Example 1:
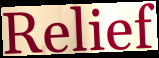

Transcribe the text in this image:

Relief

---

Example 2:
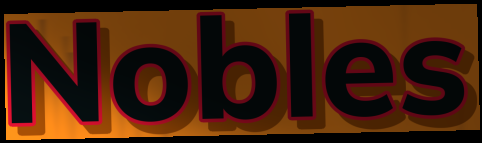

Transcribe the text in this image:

Nobles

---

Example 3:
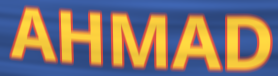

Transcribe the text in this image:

AHMAD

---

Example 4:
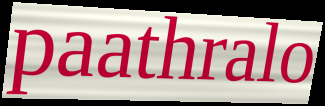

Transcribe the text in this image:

paathralo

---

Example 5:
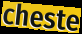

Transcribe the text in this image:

cheste